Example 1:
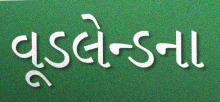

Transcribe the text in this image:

વૂડલેન્ડના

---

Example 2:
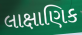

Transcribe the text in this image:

લાક્ષાણિક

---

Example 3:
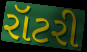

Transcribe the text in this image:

રૉટરી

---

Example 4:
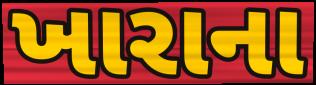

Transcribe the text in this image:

ખારાના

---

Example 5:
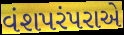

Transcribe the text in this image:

વંશપરંપરાએ